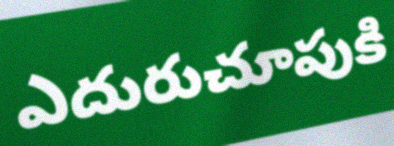
ఎదురుచూపుకి